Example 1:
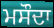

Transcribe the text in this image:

ਮਸੌਦਾ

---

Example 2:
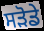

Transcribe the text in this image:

ਸੜੋਡੇ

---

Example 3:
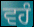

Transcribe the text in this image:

ਵਹੰ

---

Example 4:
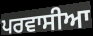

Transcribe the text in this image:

ਪਰਵਾਸੀਆ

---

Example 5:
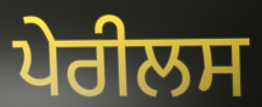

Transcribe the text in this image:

ਪੇਰੀਲਸ